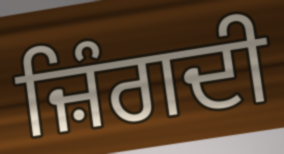
ਜ਼ਿੰਗਦੀ